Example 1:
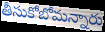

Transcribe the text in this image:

తీసుకోబోమన్నారు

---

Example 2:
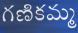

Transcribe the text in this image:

గణికమ్మ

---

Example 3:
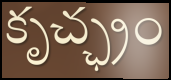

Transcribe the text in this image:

కృచ్ఛ్రం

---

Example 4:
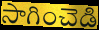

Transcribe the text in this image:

సాగించెడి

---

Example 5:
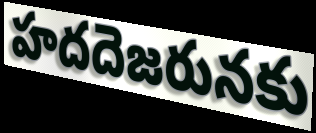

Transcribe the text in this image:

హదదెజరునకు